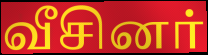
வீசினர்